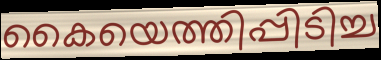
കൈയെത്തിപ്പിടിച്ച